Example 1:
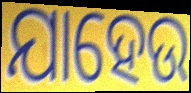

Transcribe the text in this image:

ଯାହେଉ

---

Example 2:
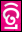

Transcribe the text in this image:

ତ୍ରି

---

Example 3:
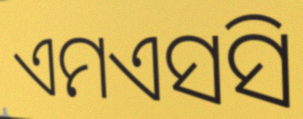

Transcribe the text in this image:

ଏମଏସସି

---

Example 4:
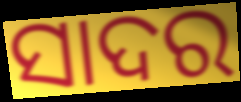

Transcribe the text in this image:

ସାଦର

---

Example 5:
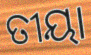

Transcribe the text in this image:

ତୀୟା